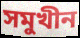
সমুখীন